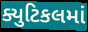
ક્યુટિકલમાં